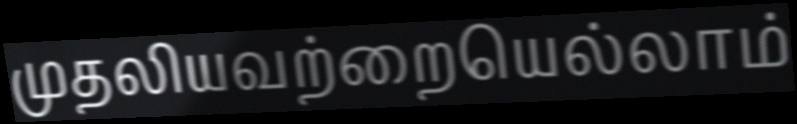
முதலியவற்றையெல்லாம்